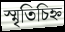
স্মৃতিচিহ্ন